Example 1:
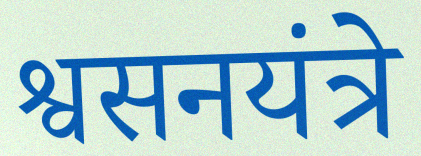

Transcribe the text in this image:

श्वसनयंत्रे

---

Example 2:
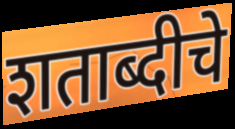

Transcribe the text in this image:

शताब्दीचे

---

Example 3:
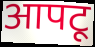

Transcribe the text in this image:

आपटू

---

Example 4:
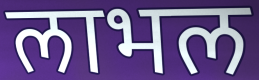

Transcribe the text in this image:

लाभल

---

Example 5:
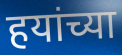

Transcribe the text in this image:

हयांच्या